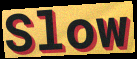
Slow